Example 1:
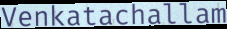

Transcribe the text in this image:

Venkatachallam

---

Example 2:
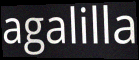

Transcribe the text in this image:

agalilla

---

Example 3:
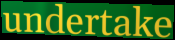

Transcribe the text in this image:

undertake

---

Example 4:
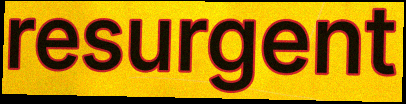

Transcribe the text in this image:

resurgent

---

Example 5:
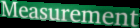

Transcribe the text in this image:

Measurement